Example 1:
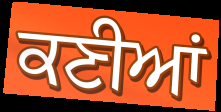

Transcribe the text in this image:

ਕਣੀਆਂ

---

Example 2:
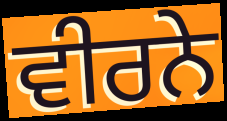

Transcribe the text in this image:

ਵੀਰਨੇ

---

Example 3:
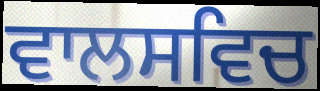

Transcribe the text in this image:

ਵਾਲਸਵਿਚ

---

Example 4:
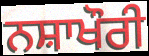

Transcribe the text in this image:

ਨਸ਼ਾਖੌਰੀ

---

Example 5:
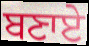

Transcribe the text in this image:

ਬਣਾਏ